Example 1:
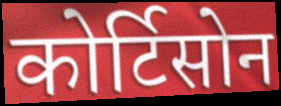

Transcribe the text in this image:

कोर्टिसोन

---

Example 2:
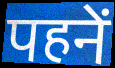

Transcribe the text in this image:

पहनें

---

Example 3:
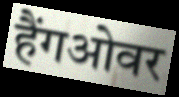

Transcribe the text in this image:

हैंगओवर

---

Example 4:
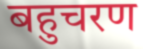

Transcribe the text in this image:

बहुचरण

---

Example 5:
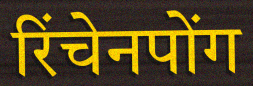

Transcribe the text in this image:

रिंचेनपोंग